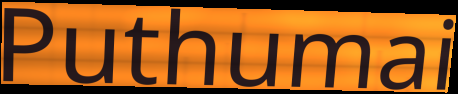
Puthumai